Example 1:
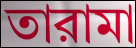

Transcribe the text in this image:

তারামা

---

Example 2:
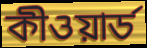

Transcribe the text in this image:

কীওয়ার্ড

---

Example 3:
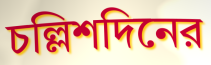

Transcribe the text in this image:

চল্লিশদিনের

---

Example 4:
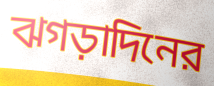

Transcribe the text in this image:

ঝগড়াদিনের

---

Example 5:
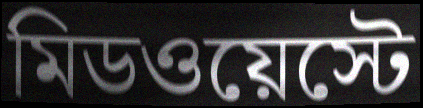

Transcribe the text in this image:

মিডওয়েস্টে